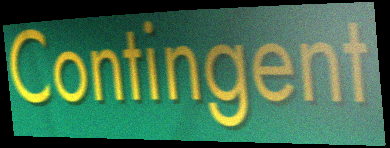
Contingent